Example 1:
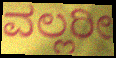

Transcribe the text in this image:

ವಲ್ಲರೀ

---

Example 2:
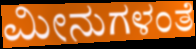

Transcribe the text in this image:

ಮೀನುಗಳಂತೆ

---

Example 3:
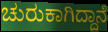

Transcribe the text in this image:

ಚುರುಕಾಗಿದ್ದಾನೆ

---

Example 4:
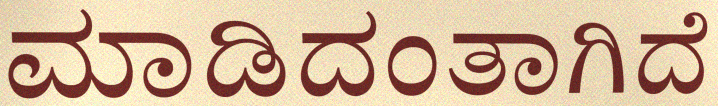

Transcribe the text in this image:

ಮಾಡಿದಂತಾಗಿದೆ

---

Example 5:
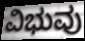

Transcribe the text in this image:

ವಿಭುವು